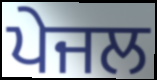
ਪੇਜਲ